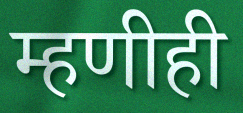
म्हणीही